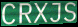
CRXJS